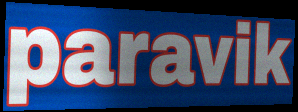
paravik